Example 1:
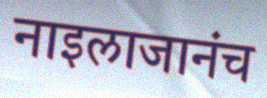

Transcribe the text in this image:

नाइलाजानंच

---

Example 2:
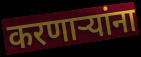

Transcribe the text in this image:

करणाऱ्यांना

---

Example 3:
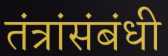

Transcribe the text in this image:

तंत्रांसंबंधी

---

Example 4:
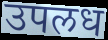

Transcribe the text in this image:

उपलध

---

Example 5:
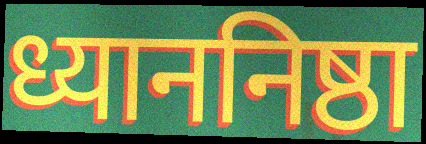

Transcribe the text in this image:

ध्याननिष्ठा